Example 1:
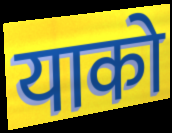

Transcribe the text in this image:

याको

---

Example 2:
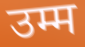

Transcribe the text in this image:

उम्म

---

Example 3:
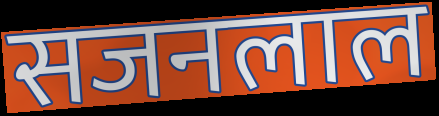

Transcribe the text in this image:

सजनलाल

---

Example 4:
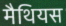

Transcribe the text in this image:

मैथियस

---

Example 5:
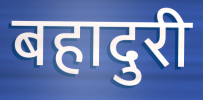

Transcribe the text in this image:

बहादुरी